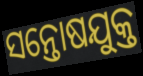
ସନ୍ତୋଷଯୁକ୍ତ